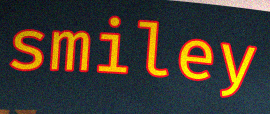
smiley